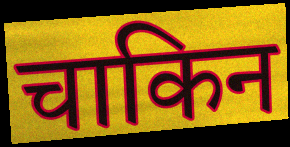
चाकिन